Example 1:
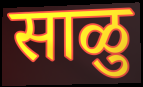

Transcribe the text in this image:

साळु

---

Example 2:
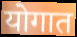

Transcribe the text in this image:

योगात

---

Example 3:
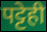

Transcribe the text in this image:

पट्टेही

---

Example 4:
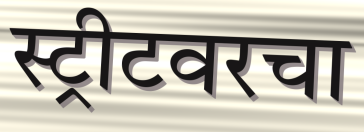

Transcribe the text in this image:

स्ट्रीटवरचा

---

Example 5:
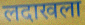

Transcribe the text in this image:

लदाखला